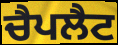
ਚੈਪਲੈਟ